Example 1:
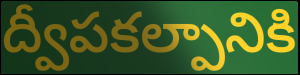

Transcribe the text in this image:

ద్వీపకల్పానికి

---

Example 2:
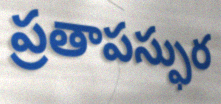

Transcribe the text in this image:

ప్రతాపస్ఫుర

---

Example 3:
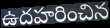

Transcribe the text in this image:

ఉదహరించిన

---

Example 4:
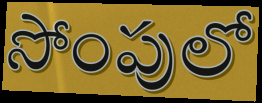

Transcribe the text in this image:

సోంపులో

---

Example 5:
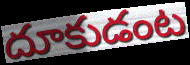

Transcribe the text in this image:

దూకుడంట